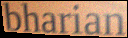
bharian